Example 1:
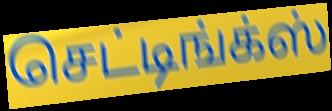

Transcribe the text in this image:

செட்டிங்க்ஸ்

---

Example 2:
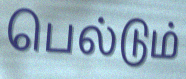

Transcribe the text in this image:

பெல்டும்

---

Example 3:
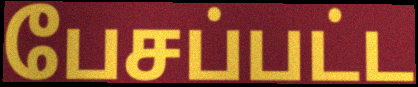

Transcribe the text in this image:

பேசப்பட்ட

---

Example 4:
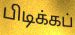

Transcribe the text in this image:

பிடிக்கப்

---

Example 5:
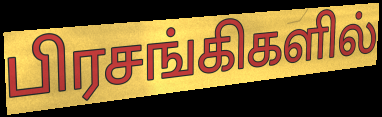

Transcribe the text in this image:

பிரசங்கிகளில்